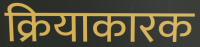
क्रियाकारक